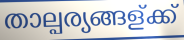
താല്പര്യങ്ങള്ക്ക്